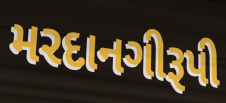
મરદાનગીરૂપી